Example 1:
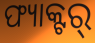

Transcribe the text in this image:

ଫ୍ୟାକ୍ଟର୍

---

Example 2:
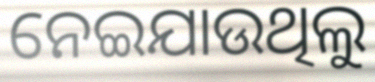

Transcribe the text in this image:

ନେଇଯାଉଥିଲୁ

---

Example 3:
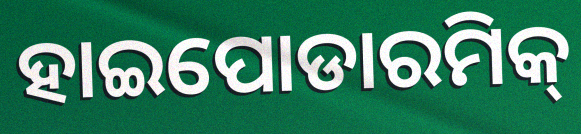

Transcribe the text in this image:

ହାଇପୋଡାରମିକ୍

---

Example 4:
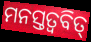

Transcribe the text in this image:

ମନସ୍ତତ୍ୱବିତ୍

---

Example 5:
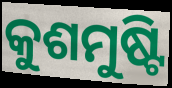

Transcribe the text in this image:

କୁଶମୁଷ୍ଟି